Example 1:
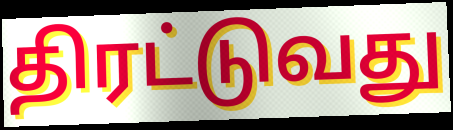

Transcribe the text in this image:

திரட்டுவது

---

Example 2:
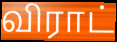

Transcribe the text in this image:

விராட்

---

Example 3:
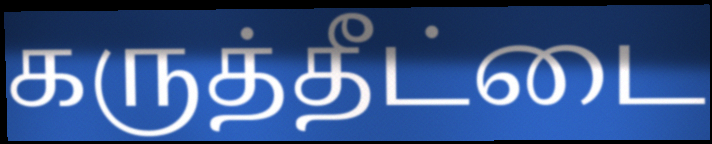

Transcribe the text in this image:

கருத்தீட்டை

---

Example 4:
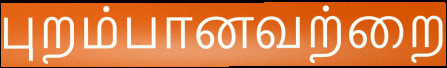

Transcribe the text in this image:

புறம்பானவற்றை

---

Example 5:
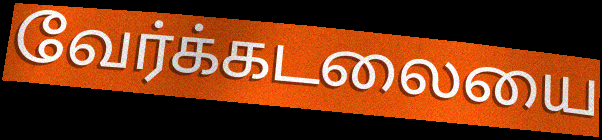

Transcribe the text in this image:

வேர்க்கடலையை